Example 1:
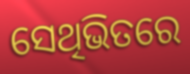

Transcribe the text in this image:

ସେଥିଭିତରେ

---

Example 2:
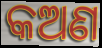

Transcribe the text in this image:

କଅଣ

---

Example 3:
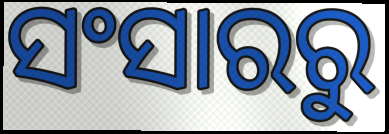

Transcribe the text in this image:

ସଂସାରରୁ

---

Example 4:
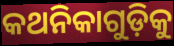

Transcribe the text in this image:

କଥନିକାଗୁଡ଼ିକୁ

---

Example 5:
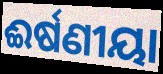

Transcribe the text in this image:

ଈର୍ଷଣୀୟା